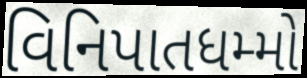
વિનિપાતધમ્મો